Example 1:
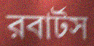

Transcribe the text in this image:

রবার্টস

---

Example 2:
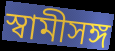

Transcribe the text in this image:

স্বামীসঙ্গ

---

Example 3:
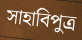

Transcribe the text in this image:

সাহাবিপুত্র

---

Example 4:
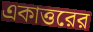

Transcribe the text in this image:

একাত্তরের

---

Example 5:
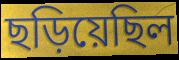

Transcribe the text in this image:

ছড়িয়েছিল